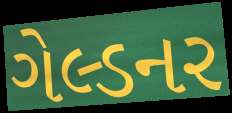
ગેલ્ડનર